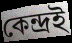
কেন্দ্ৰই